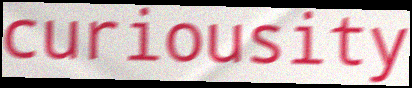
curiousity